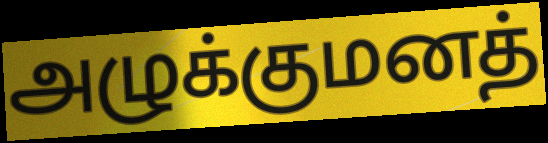
அழுக்குமனத்